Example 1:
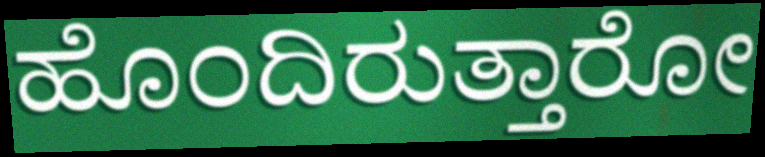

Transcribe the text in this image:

ಹೊಂದಿರುತ್ತಾರೋ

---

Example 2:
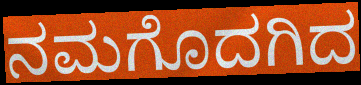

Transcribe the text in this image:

ನಮಗೊದಗಿದ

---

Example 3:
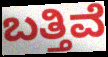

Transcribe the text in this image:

ಬತ್ತಿವೆ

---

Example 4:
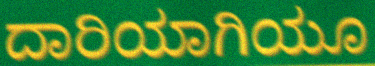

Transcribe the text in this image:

ದಾರಿಯಾಗಿಯೂ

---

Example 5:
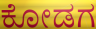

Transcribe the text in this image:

ಕೋಡಗ